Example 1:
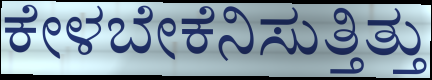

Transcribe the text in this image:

ಕೇಳಬೇಕೆನಿಸುತ್ತಿತ್ತು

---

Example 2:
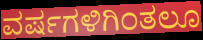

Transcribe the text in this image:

ವರ್ಷಗಳಿಗಿಂತಲೂ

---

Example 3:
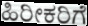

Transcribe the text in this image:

ಹಿರೀಕರಿಗೆ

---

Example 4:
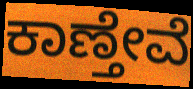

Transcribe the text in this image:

ಕಾಣ್ತೇವೆ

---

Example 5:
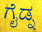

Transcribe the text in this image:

ಗೈಡ್ನ